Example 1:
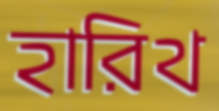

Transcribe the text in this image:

হারিথ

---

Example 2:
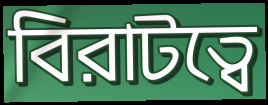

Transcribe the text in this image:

বিরাটত্বে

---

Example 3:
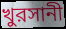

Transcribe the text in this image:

খুরসানী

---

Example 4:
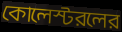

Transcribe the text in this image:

কোলেস্টরলের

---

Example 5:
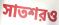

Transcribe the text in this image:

সাতশরও